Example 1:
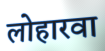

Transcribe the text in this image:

लोहारवा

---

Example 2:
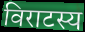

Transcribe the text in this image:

विराटस्य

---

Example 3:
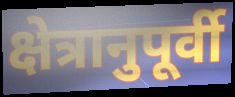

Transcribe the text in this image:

क्षेत्रानुपूर्वी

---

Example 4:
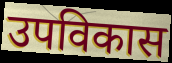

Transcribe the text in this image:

उपविकास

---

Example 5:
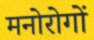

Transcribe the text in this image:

मनोरोगों